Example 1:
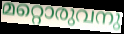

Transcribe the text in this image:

മറ്റൊരുവനു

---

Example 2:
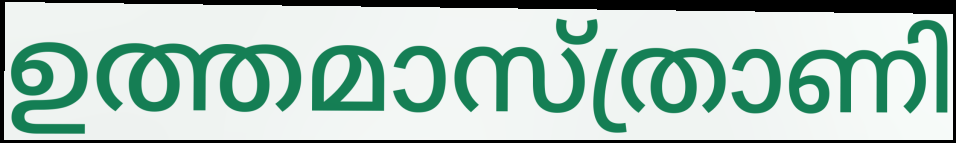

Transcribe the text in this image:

ഉത്തമാസ്ത്രാണി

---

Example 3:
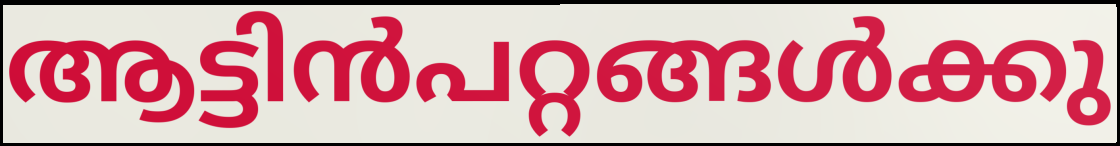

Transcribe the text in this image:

ആട്ടിൻപറ്റങ്ങൾക്കു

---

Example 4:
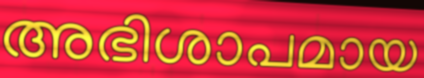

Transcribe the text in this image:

അഭിശാപമായ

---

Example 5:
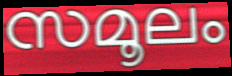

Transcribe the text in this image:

സമൂലം